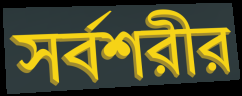
সর্বশরীর